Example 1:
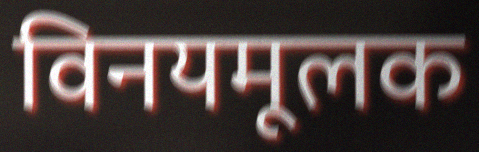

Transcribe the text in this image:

विनयमूलक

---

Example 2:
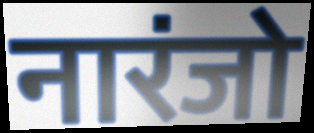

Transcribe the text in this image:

नारंजो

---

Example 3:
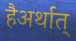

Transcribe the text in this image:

हैअर्थात्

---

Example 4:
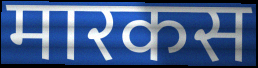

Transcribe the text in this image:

मारकस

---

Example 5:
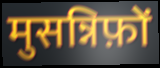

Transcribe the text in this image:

मुसन्निफ़ों